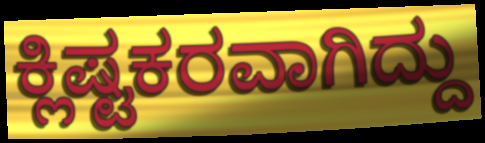
ಕ್ಲಿಷ್ಟಕರವಾಗಿದ್ದು